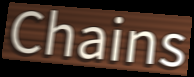
Chains